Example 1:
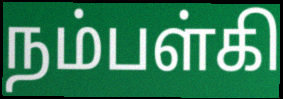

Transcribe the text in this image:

நம்பள்கி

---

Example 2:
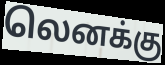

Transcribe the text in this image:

லெனக்கு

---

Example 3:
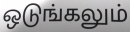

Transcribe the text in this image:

ஒடுங்கலும்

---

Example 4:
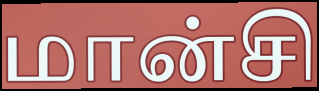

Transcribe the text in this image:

மான்சி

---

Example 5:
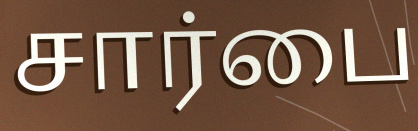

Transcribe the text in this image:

சார்பை